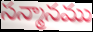
సన్మానము